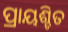
ପ୍ରାୟଶ୍ଚିତ